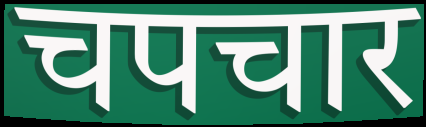
चपचार